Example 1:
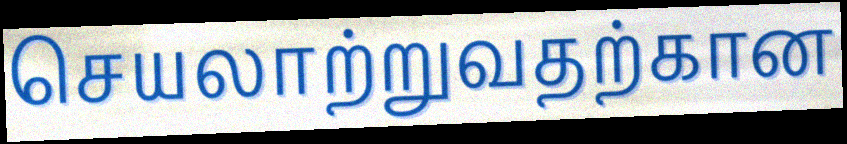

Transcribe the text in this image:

செயலாற்றுவதற்கான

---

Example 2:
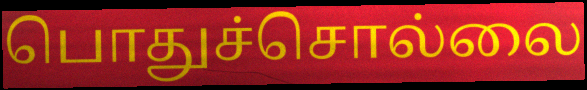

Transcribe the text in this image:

பொதுச்சொல்லை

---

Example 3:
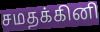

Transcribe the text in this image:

சமதக்கினி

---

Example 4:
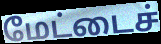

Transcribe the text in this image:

மேட்டைச்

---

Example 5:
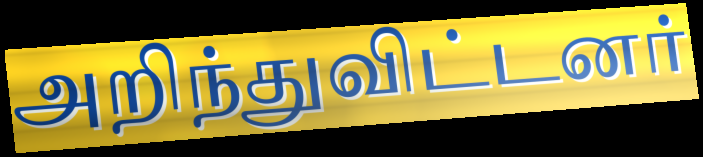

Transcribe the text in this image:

அறிந்துவிட்டனர்